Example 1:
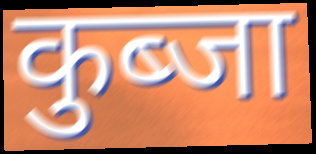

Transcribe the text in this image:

कुब्जा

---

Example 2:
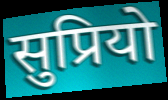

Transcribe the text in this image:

सुप्रियो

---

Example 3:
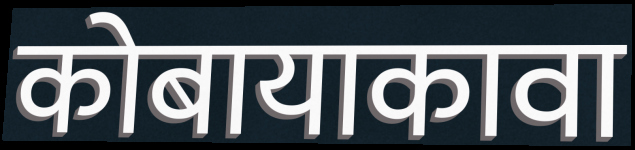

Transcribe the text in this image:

कोबायाकावा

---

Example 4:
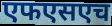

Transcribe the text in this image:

एफएसएच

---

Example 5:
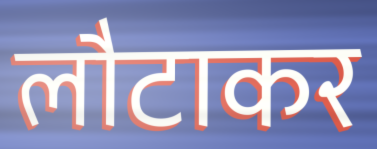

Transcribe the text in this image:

लौटाकर